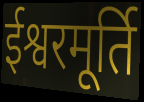
ईश्वरमूर्ति